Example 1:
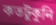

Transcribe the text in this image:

কতটুকুনি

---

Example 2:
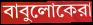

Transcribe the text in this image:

বাবুলোকেরা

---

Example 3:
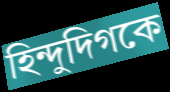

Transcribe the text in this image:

হিন্দুদিগকে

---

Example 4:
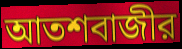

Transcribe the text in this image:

আতশবাজীর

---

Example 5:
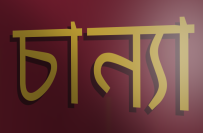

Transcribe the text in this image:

চান্যা